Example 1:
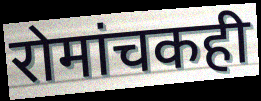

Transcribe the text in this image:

रोमांचकही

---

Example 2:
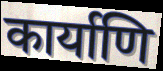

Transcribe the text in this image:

कार्याणि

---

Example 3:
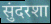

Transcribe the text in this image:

सुंदरशा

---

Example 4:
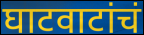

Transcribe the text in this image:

घाटवाटांचं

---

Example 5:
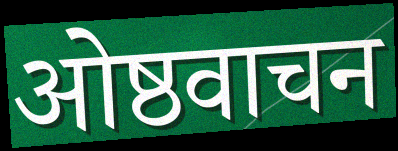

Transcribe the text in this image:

ओष्ठवाचन